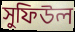
সুফিউল